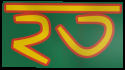
হত